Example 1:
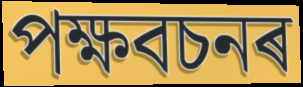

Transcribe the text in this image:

পক্ষবচনৰ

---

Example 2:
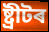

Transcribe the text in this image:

ষ্ট্ৰীটৰ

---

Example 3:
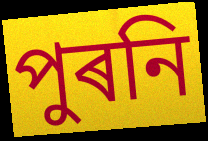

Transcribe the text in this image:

পুৰনি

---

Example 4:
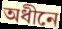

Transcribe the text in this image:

অধীনে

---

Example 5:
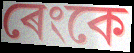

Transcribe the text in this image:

ৰেংকে